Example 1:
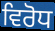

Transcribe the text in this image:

ਵਿਰੋਧ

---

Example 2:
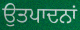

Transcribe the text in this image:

ਉਤਪਾਦਨਾਂ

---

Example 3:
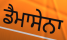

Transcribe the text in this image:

ਡੈਮਾਸੇਨਾ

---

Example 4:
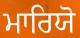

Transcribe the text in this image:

ਮਾਰਿਯੋ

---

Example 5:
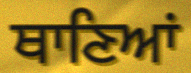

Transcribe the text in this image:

ਥਾਣਿਆਂ